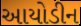
આયોડીન